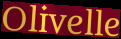
Olivelle